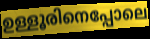
ഉള്ളൂരിനെപ്പോലെ